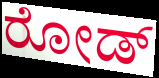
ರೋಡ್